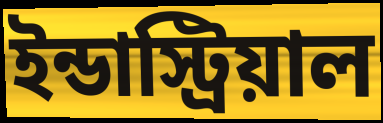
ইন্ডাস্ট্রিয়াল